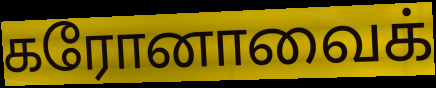
கரோனாவைக்